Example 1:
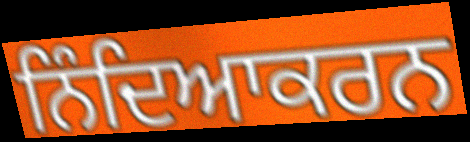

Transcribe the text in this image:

ਨਿੰਦਿਆਕਰਨ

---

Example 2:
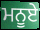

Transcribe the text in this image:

ਮਨੂਏ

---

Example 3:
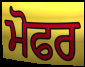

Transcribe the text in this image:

ਮੋਫਰ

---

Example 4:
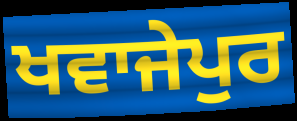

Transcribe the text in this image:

ਖਵਾਜੇਪੁਰ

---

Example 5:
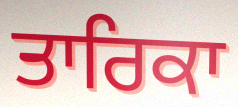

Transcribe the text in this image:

ਤਾਰਿਕਾ